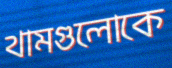
থামগুলোকে